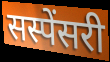
सस्पेंसरी